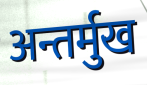
अन्तर्मुख